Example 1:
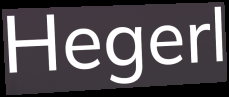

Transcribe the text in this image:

Hegerl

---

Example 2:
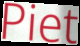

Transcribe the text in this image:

Piet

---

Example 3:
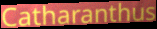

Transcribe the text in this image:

Catharanthus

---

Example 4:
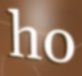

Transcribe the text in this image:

ho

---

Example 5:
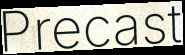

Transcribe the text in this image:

Precast